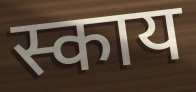
स्काय